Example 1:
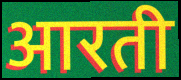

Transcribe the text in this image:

आरती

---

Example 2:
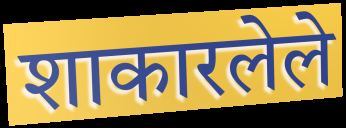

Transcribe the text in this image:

शाकारलेले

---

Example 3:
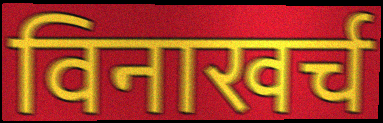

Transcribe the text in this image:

विनाखर्च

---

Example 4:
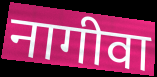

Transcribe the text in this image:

नागीवा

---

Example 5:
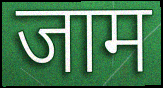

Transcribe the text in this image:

जाम